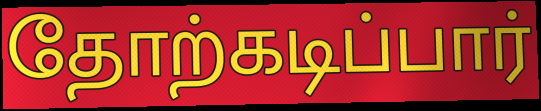
தோற்கடிப்பார்